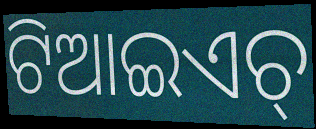
ଟିଆଇଏଚ୍